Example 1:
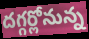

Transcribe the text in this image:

దగ్గర్లోనున్న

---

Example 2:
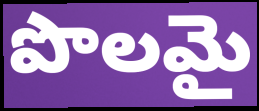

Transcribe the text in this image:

పొలమై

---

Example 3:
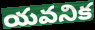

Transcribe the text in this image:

యవనిక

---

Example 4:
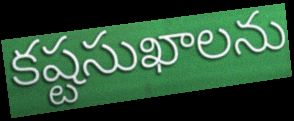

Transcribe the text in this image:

కష్టసుఖాలను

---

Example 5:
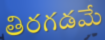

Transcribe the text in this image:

తిరగడమే